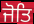
ਜੋਤਿ